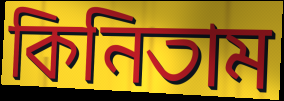
কিনিতাম